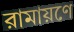
রামায়ণে